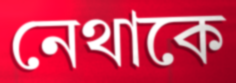
নেথাকে